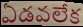
ఏడవలేక